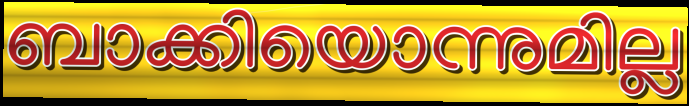
ബാക്കിയൊന്നുമില്ല